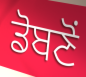
ਡੋਬਣੋਂ